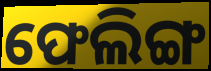
ଫେଲିଙ୍ଗ